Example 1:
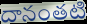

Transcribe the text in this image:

దానంతటి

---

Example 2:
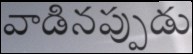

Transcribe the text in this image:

వాడినప్పుడు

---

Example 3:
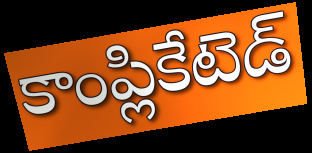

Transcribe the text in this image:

కాంప్లికేటెడ్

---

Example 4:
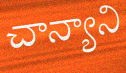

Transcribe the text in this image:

చాన్యాని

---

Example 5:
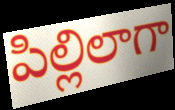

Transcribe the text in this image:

పిల్లిలాగా